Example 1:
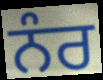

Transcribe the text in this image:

ਨੰਰ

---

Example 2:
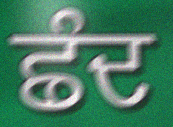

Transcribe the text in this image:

ਛੰਦ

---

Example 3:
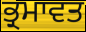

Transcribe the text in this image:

ਭ੍ਰਮਾਵਤ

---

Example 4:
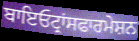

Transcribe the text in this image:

ਬਾਇਓਟ੍ਰਾਂਸਫਾਰਮੇਸ਼ਨ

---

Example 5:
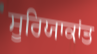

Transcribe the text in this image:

ਸੂਰਿਯਾਕਾਂਤ